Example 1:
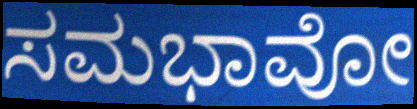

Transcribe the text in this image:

ಸಮಭಾವೋ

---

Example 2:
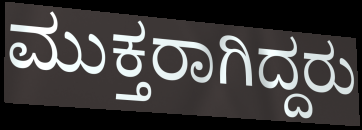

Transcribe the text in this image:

ಮುಕ್ತರಾಗಿದ್ದರು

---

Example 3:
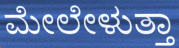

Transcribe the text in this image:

ಮೇಲೇಳುತ್ತಾ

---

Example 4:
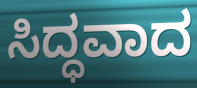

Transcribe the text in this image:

ಸಿದ್ಧವಾದ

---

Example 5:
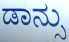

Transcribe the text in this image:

ಡಾನ್ಸು